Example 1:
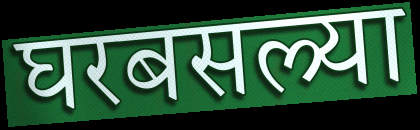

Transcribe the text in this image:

घरबसल्या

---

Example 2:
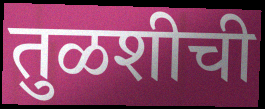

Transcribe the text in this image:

तुळशीची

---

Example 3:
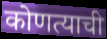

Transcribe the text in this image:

कोणत्याची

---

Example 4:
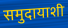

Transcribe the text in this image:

समुदायाशी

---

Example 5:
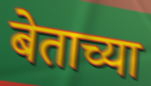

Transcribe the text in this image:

बेताच्या